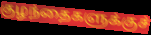
குழந்தைகளுக்குச்